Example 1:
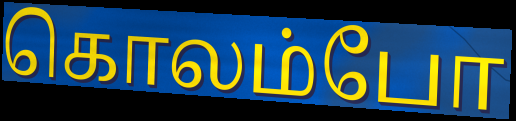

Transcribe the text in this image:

கொலம்போ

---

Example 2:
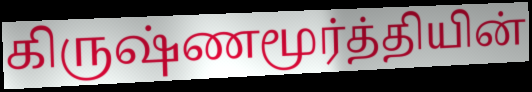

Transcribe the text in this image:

கிருஷ்ணமூர்த்தியின்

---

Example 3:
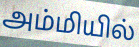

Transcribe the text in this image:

அம்மியில்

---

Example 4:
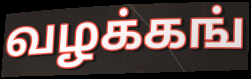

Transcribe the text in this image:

வழக்கங்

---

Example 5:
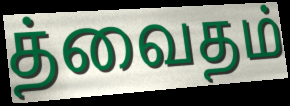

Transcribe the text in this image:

த்வைதம்